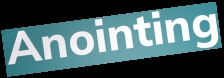
Anointing